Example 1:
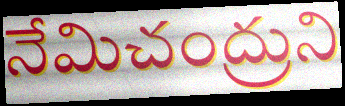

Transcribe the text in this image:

నేమిచంద్రుని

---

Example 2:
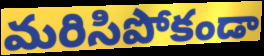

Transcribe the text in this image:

మరిసిపోకండా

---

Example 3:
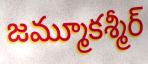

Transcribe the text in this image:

జమ్మూకశ్మీర్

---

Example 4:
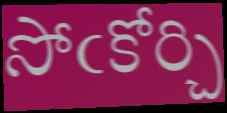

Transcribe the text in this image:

సోఁకోర్చి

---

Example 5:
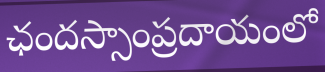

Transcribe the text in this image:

ఛందస్సాంప్రదాయంలో